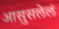
आसुसलेलं